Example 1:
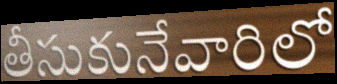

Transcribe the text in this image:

తీసుకునేవారిలో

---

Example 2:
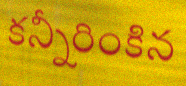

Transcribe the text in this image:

కన్నీరింకిన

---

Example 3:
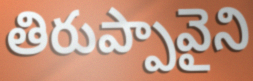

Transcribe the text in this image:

తిరుప్పావైని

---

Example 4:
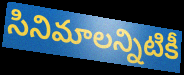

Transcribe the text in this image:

సినిమాలన్నిటికీ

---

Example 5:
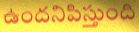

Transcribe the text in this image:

ఉందనిపిస్తుంది